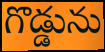
గొడ్డును